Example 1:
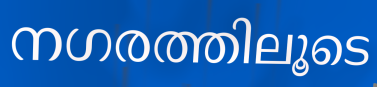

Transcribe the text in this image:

നഗരത്തിലൂടെ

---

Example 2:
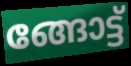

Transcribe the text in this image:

ങ്ങോട്ട്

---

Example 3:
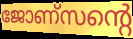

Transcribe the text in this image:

ജോണ്സന്റെ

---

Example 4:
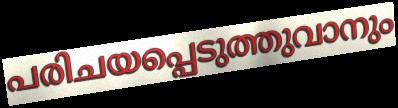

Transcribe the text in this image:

പരിചയപ്പെടുത്തുവാനും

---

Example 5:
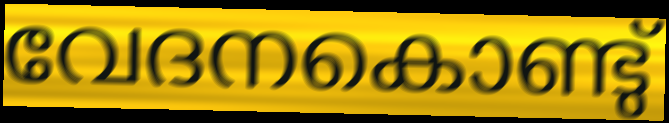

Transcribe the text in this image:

വേദനകൊണ്ടു്